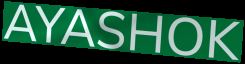
AYASHOK